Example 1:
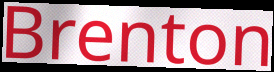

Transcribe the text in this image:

Brenton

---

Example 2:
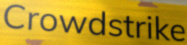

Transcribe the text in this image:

Crowdstrike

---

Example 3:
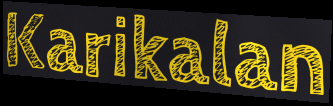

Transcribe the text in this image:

Karikalan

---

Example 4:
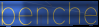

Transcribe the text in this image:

benche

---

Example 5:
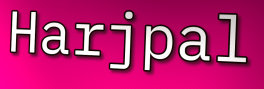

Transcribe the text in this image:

Harjpal